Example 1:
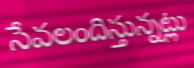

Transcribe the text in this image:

సేవలందిస్తున్నట్లు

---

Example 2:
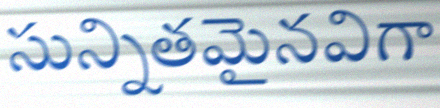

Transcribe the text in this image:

సున్నితమైనవిగా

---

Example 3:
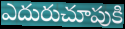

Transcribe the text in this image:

ఎదురుచూపుకి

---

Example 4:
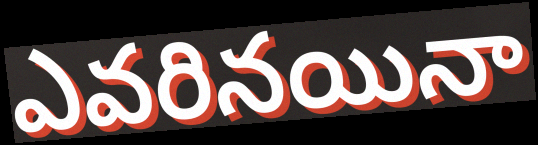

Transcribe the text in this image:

ఎవరినయినా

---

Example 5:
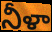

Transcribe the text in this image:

నీళా